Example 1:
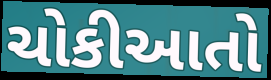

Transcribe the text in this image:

ચોકીઆતો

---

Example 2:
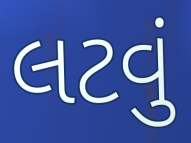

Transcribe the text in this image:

લટવું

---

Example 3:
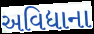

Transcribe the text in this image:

અવિદ્યાના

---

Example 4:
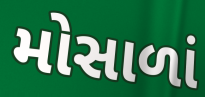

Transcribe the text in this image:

મોસાળાં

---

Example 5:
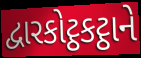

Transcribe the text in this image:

દ્વારકોટ્ઠકટ્ઠાને